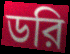
ডরি